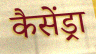
कैसेंड्रा